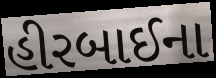
હીરબાઈના